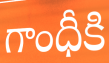
గాంధీకి